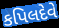
કપિલદેવે